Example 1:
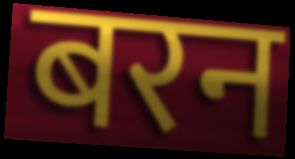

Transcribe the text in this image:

बरन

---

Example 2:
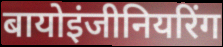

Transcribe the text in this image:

बायोइंजीनियरिंग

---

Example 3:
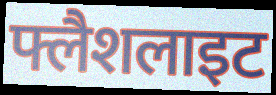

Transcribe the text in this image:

फ्लैशलाइट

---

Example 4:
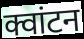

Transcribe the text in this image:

क्वांटन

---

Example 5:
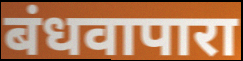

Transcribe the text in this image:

बंधवापारा